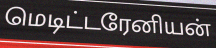
மெடிட்டரேனியன்